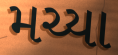
મચ્યા